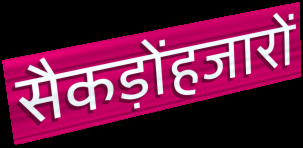
सैकड़ोंहजारों